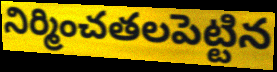
నిర్మించతలపెట్టిన